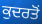
ਕੁਦਰਤੋਂ